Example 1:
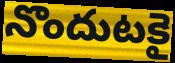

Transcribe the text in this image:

నొందుటకై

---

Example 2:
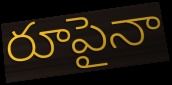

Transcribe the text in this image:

రూపైనా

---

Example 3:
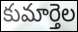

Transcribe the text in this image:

కుమార్తెల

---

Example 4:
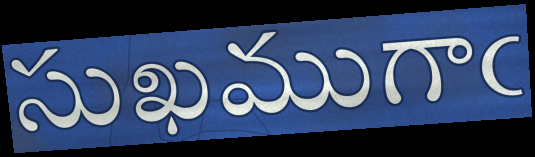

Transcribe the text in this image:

సుఖముగాఁ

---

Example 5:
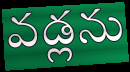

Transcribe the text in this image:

వడ్లను